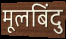
मूलबिंदु